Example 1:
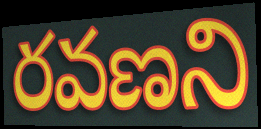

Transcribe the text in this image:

రవణని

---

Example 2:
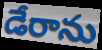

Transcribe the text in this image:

డేరాను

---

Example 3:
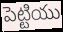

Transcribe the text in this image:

పెట్టియు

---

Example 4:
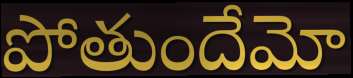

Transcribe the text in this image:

పోతుందేమో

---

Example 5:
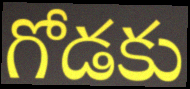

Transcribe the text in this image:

గోడకు